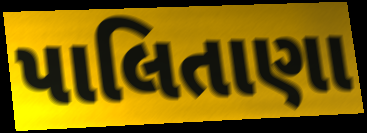
પાલિતાણા